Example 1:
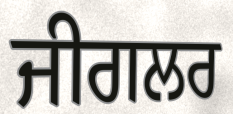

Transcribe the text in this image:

ਜੀਗਲਰ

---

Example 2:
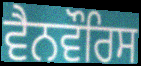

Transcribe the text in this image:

ਵੈਨਵੌਰਿਸ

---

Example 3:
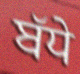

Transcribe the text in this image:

ਬੱਧੇ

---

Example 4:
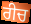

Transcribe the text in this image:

ਰੀਚ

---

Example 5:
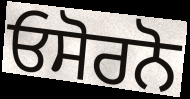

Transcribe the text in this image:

ਓਸੋਰਨੋ